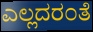
ಎಲ್ಲದರಂತೆ